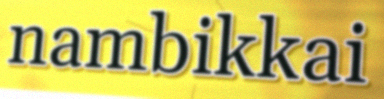
nambikkai